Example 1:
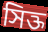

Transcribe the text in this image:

সিক্ত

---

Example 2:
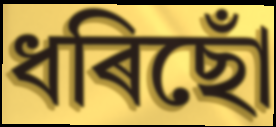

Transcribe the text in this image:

ধৰিছোঁ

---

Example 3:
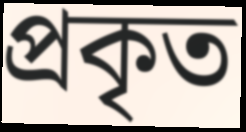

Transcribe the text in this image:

প্ৰকৃত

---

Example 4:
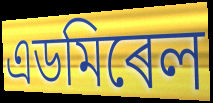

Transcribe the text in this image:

এডমিৰেল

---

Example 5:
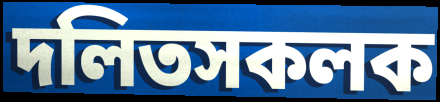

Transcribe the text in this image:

দলিতসকলক